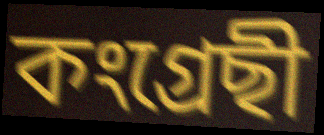
কংগ্ৰেছী